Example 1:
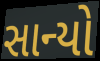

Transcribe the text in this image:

સાન્યો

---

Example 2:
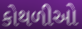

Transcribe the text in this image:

કોથળીઓ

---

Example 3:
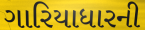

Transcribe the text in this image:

ગારિયાધારની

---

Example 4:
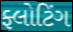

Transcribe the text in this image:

ફ્લોટિંગ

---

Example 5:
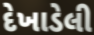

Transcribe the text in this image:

દેખાડેલી